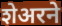
शेअरने